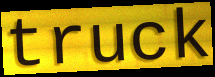
truck